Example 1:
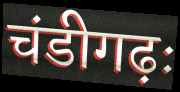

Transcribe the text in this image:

चंडीगढ़ः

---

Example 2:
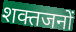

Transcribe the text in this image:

शक्तजनों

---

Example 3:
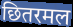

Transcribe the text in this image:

छितरमल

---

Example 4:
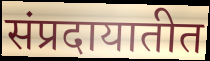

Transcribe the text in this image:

संप्रदायातीत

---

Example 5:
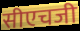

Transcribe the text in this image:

सीएचजी